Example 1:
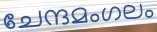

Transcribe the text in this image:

ചേന്ദമംഗലം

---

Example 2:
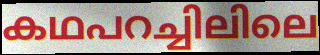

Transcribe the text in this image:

കഥപറച്ചിലിലെ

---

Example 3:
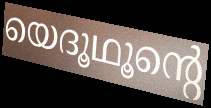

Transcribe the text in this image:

യെദൂഥൂന്റെ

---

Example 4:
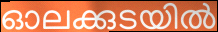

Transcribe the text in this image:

ഓലക്കുടയിൽ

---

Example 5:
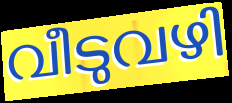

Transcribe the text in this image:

വീടുവഴി